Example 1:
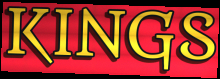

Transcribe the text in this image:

KINGS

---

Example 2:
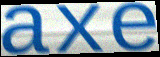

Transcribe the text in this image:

axe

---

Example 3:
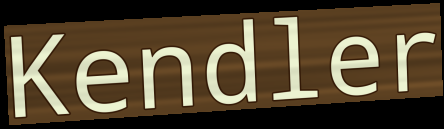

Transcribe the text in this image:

Kendler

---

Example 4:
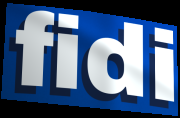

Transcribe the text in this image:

fidi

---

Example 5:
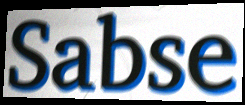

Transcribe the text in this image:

Sabse